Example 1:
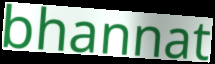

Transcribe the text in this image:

bhannat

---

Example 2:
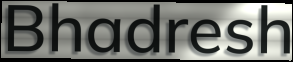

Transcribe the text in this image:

Bhadresh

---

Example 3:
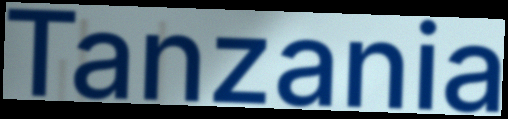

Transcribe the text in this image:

Tanzania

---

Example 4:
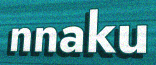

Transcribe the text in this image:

nnaku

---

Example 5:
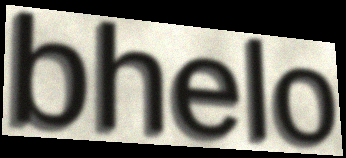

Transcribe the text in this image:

bhelo